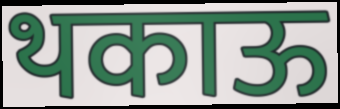
थकाऊ